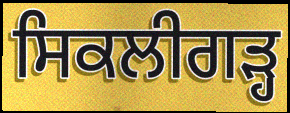
ਸਿਕਲੀਗੜ੍ਹ